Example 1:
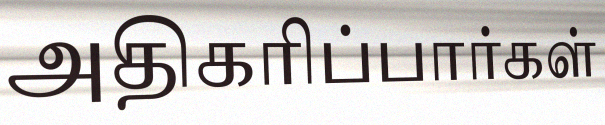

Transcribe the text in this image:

அதிகரிப்பார்கள்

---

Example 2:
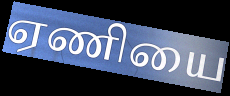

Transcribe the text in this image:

ஏணியை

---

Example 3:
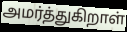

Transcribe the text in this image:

அமர்த்துகிறாள்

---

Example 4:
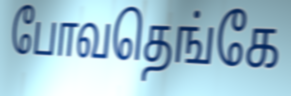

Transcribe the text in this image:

போவதெங்கே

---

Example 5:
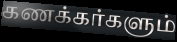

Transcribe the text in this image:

கணக்கர்களும்